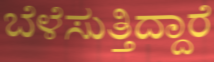
ಬೆಳೆಸುತ್ತಿದ್ದಾರೆ